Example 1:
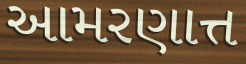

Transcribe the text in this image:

આમરણાત્ત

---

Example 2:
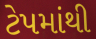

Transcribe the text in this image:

ટેપમાંથી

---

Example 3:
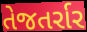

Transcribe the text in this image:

તેજતર્રાર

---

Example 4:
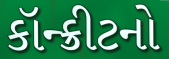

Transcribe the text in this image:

કૉન્ક્રીટનો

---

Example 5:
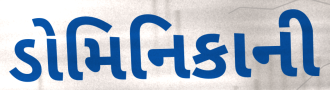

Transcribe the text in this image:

ડોમિનિકાની